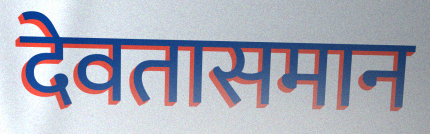
देवतासमान